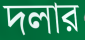
দলার